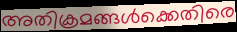
അതിക്രമങ്ങൾക്കെതിരെ